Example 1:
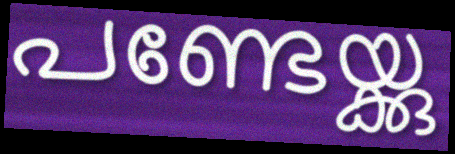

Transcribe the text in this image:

പണ്ടേയ്ക്കു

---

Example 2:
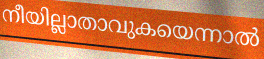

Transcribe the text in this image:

നീയില്ലാതാവുകയെന്നാൽ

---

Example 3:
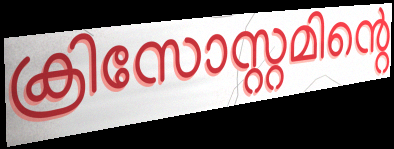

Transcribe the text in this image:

ക്രിസോസ്റ്റമിന്റെ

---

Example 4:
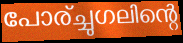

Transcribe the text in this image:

പോര്ച്ചുഗലിന്റെ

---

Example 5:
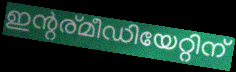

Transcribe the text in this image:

ഇന്റര്മീഡിയേറ്റിന്